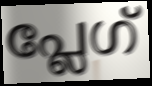
പ്ലേഗ്